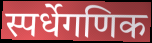
स्पर्धेगणिक